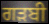
ਗੜਬੀ